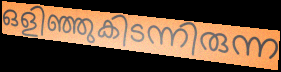
ഒളിഞ്ഞുകിടന്നിരുന്ന